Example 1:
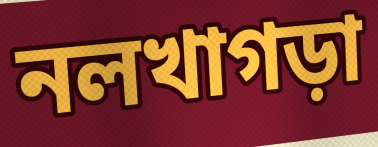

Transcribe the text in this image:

নলখাগড়া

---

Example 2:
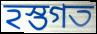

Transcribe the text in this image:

হস্তগত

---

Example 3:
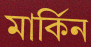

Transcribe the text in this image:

মার্কিন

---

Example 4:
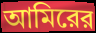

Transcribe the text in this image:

আমিরের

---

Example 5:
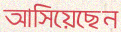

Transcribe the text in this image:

আসিয়েছেন